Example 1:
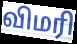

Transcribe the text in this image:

விமரி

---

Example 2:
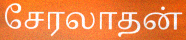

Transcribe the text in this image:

சேரலாதன்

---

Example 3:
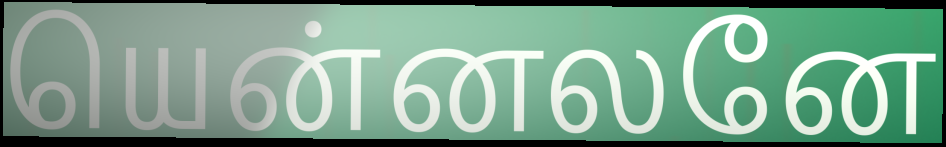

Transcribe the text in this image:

யென்னலனே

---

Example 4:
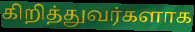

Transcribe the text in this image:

கிறித்துவர்களாக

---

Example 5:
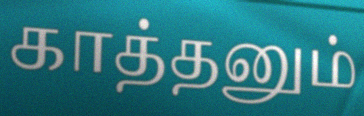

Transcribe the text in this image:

காத்தனும்